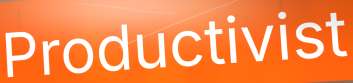
Productivist